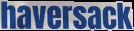
haversack